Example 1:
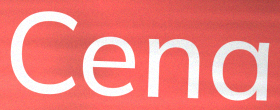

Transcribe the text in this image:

Cena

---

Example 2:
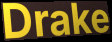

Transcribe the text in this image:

Drake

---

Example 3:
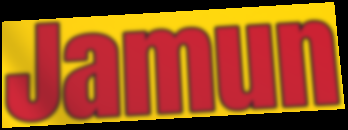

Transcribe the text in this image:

Jamun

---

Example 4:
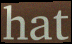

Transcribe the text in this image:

hat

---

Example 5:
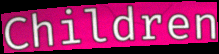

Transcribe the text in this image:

Children